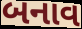
બનાવ